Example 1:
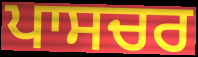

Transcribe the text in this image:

ਪਾਸਚਰ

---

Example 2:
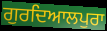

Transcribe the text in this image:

ਗੁਰਦਿਆਲਪੁਰਾ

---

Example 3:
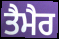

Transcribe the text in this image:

ਤੈਮੈਰ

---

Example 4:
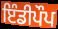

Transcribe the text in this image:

ਇੰਡੀਪੌਪ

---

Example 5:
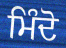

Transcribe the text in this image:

ਮਿੰਦੋ